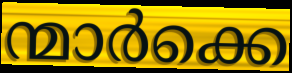
ന്മാർക്കെ